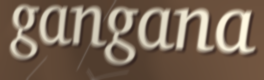
gangana